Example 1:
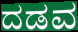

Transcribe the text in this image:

ದಡವ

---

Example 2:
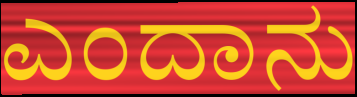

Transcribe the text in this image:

ಎಂದಾನು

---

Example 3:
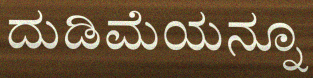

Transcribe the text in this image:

ದುಡಿಮೆಯನ್ನೂ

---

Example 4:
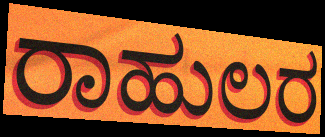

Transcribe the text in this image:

ರಾಹುಲರ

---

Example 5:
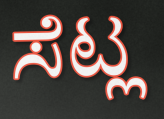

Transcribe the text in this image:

ಸೆಟ್ಲ